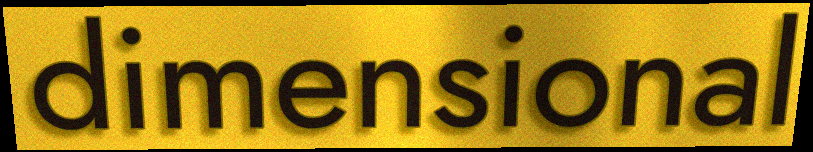
dimensional